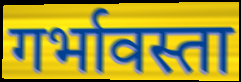
गर्भावस्ता